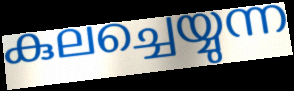
കുലച്ചെയ്യുന്ന